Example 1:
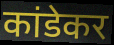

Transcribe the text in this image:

कांडेकर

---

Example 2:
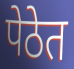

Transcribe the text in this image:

पेठेत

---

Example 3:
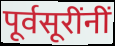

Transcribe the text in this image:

पूर्वसूरींनीं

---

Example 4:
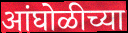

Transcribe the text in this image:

आंघोळीच्या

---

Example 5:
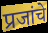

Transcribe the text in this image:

प्रजांचे